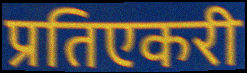
प्रतिएकरी